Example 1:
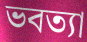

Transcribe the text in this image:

ভবত্যা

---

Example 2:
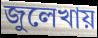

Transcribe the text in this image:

জুলেখায়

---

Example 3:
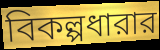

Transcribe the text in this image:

বিকল্পধারার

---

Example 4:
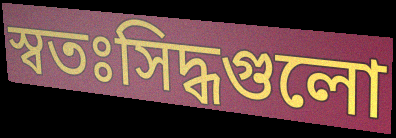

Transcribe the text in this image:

স্বতঃসিদ্ধগুলো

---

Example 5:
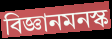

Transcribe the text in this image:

বিজ্ঞানমনস্ক